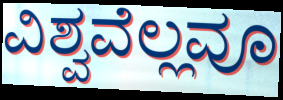
ವಿಶ್ವವೆಲ್ಲವೂ